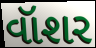
વૉશર